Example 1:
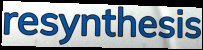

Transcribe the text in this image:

resynthesis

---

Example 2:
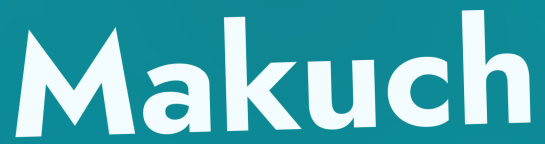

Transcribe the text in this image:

Makuch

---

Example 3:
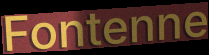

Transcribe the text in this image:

Fontenne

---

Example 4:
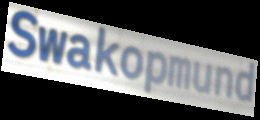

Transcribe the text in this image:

Swakopmund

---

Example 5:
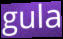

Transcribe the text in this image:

gula